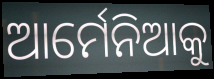
ଆର୍ମେନିଆକୁ